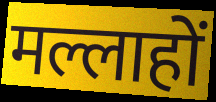
मल्लाहों